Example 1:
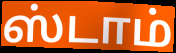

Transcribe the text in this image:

ஸ்டாம்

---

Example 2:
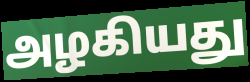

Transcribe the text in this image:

அழகியது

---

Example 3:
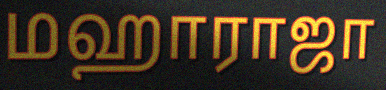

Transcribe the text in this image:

மஹாராஜா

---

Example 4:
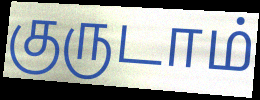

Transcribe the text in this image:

குருடாம்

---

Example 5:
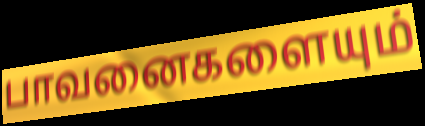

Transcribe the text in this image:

பாவனைகளையும்